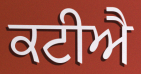
ਕਟੀਐ